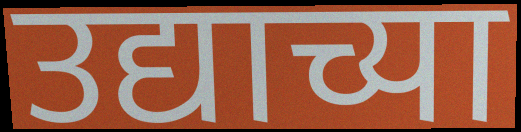
उद्याच्या